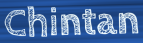
Chintan